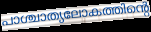
പാശ്ചാത്യലോകത്തിന്റെ